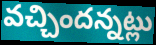
వచ్చిందన్నట్లు